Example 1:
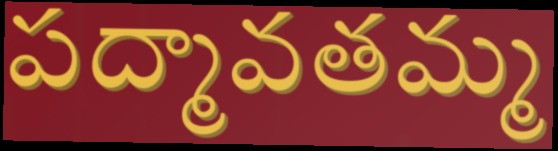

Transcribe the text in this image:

పద్మావతమ్మ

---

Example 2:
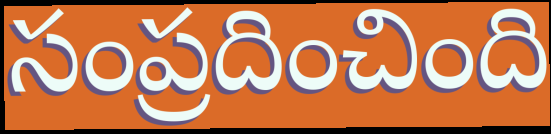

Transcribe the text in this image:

సంప్రదించింది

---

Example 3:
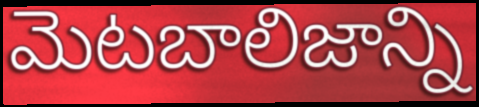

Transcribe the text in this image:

మెటబాలిజాన్ని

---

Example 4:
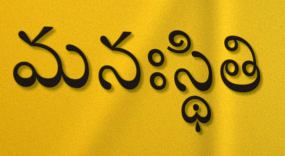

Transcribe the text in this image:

మనఃస్థితి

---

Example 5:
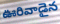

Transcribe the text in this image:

ఊరివాడైన